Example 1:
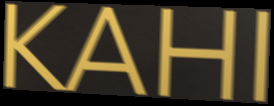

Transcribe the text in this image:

KAHI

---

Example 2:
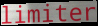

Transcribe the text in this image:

limiter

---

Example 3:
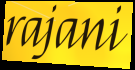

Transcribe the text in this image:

rajani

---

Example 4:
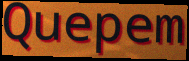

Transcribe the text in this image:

Quepem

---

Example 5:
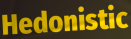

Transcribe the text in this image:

Hedonistic